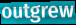
outgrew